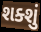
શક્શું